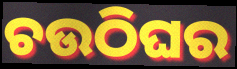
ଚଉଠିଘର